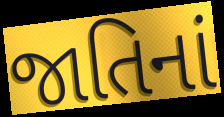
જાતિનાં